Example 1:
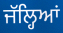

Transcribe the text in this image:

ਜੱਲ੍ਹਿਆਂ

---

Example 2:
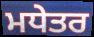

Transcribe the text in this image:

ਮਧੇਤਰ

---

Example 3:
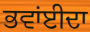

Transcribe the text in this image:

ਭਵਾਂਈਦਾ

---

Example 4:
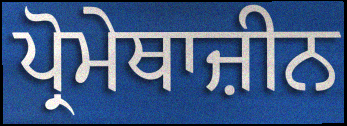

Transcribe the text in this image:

ਪ੍ਰੋਮੇਥਾਜ਼ੀਨ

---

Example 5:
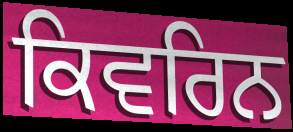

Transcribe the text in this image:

ਕਿਵਰਿਨ